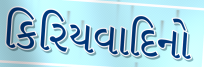
કિરિયવાદિનો